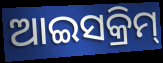
ଆଇସକ୍ରିମ୍